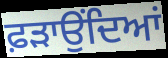
ਫ਼ੜਾਉਂਦਿਆਂ